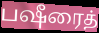
பஷீரைத்